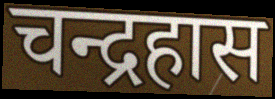
चन्द्रहास